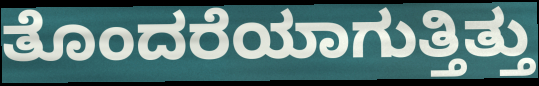
ತೊಂದರೆಯಾಗುತ್ತಿತ್ತು